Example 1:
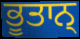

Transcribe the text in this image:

ਭੂਤਾਨ੍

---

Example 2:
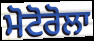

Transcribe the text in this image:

ਮੋਟੋਰੋਲਾ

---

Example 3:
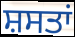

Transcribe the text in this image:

ਸ਼ਸਤਾਂ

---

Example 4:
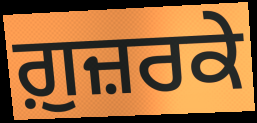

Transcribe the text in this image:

ਗ਼ੁਜ਼ਰਕੇ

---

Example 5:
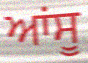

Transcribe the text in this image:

ਆਂਸੂ